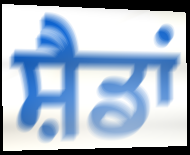
ਸ਼ੈਡਾਂ